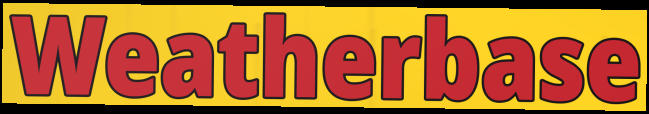
Weatherbase